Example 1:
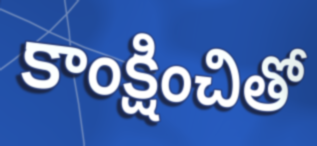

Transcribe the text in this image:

కాంక్షించితో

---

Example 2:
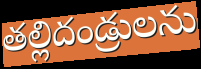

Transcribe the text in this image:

తల్లిదండ్రులను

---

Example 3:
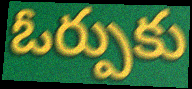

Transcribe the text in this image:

ఓర్పుకు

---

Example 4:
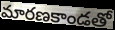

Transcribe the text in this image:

మారణకాండతో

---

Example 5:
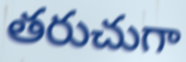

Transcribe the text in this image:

తరుచుగా